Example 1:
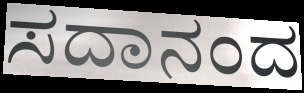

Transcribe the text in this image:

ಸದಾನಂದ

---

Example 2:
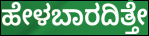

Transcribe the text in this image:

ಹೇಳಬಾರದಿತ್ತೇ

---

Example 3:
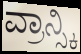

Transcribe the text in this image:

ವ್ರಾನ್ಸ್ಕಿ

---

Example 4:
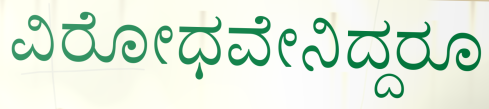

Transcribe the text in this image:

ವಿರೋಧವೇನಿದ್ದರೂ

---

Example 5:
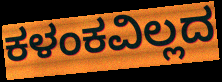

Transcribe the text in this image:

ಕಳಂಕವಿಲ್ಲದ